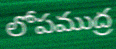
లోపముద్ర